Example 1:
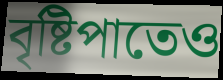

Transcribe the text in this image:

বৃষ্টিপাতেও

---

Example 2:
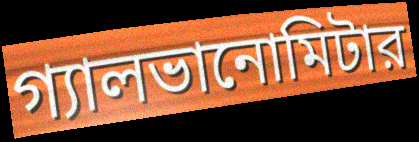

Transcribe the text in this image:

গ্যালভানোমিটার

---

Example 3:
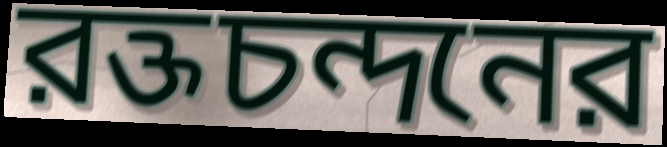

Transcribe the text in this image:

রক্তচন্দনের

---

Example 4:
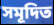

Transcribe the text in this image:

সমূদিত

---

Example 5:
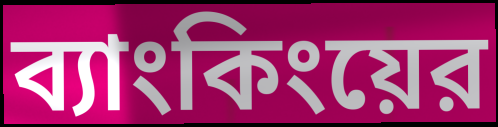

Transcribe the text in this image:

ব্যাংকিংয়ের